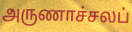
அருணாச்சலப்